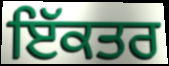
ਇੱਕਤਰ